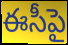
ఈసీపై